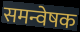
समन्वेषक